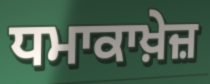
ਧਮਾਕਾਖ਼ੇਜ਼